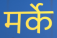
मर्के